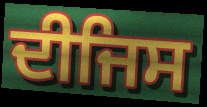
ਦੀਜਿਸ